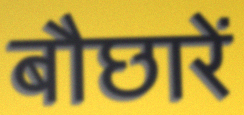
बौछारें